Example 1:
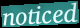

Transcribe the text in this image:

noticed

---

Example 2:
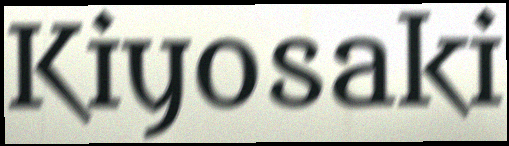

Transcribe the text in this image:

Kiyosaki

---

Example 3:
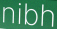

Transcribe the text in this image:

nibh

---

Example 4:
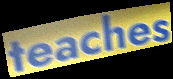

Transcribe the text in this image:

teaches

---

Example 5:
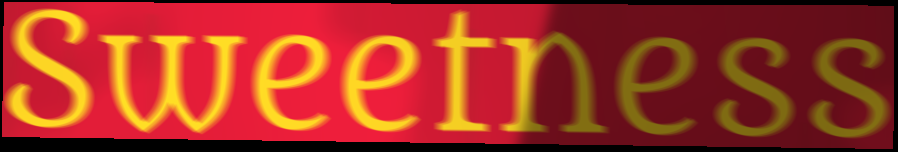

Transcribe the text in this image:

Sweetness